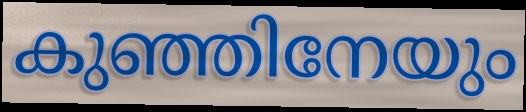
കുഞ്ഞിനേയും